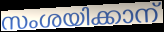
സംശയിക്കാന്